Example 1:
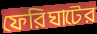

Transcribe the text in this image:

ফেরিঘাটের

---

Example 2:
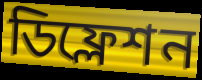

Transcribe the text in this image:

ডিফ্লেশন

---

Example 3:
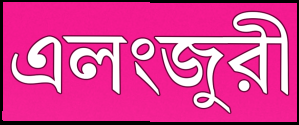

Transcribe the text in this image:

এলংজুরী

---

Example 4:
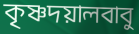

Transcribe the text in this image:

কৃষ্ণদয়ালবাবু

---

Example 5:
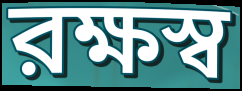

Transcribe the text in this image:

রক্ষস্ব